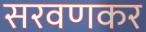
सरवणकर